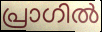
പ്രാഗിൽ